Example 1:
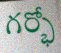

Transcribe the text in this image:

గర్భో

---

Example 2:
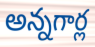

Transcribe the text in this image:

అన్నగార్ల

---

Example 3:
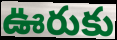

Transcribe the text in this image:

ఊరుకు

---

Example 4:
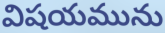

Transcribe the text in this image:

విషయమును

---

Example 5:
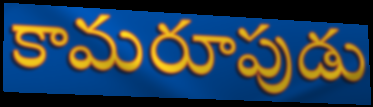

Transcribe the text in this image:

కామరూపుడు